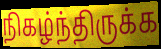
நிகழ்ந்திருக்க